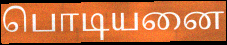
பொடியனை